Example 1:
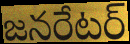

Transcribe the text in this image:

జనరేటర్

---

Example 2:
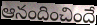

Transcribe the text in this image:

ఆనందించిందే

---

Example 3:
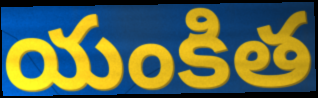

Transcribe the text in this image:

యంకిత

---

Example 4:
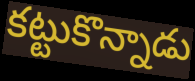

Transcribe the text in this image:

కట్టుకొన్నాడు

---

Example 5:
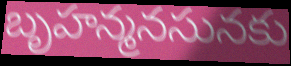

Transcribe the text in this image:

బృహన్మనసునకు